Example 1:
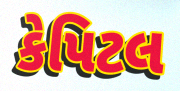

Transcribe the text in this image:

કેપિટલ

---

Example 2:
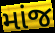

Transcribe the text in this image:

માંજ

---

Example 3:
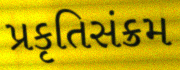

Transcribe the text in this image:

પ્રકૃતિસંક્રમ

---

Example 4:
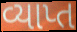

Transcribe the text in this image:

વ્યાપ્ત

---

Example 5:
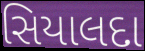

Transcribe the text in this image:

સિયાલદા